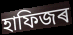
হাফিজৰ